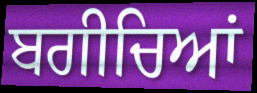
ਬਗੀਚਿਆਂ